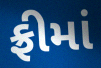
ફ્રીમાં